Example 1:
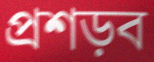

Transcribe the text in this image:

প্রশড়ব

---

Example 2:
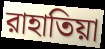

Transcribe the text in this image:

রাহাতিয়া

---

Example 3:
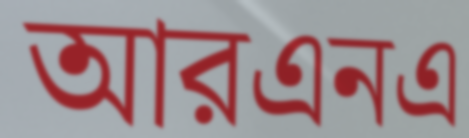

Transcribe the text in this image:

আরএনএ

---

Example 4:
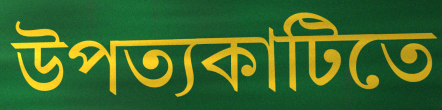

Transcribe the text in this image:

উপত্যকাটিতে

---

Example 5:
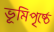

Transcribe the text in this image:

ভূমিপৃষ্ঠে